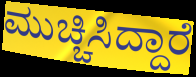
ಮುಚ್ಚಿಸಿದ್ದಾರೆ